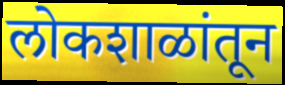
लोकशाळांतून